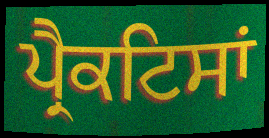
ਪ੍ਰੈਕਟਿਸਾਂ